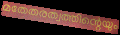
മതേതരത്വത്തിന്റെയും